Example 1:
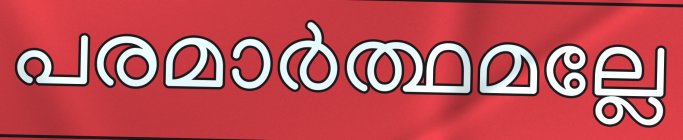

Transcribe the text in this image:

പരമാർത്ഥമല്ലേ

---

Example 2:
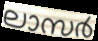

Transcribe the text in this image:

ലാസർ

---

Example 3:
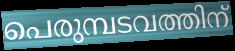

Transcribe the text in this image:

പെരുമ്പടവത്തിന്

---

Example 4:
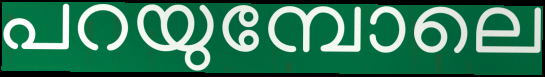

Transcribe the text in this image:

പറയുമ്പോലെ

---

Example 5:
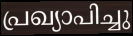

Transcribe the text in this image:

പ്രഖ്യാപിച്ചു